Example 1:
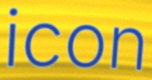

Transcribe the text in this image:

icon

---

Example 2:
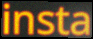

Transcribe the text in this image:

insta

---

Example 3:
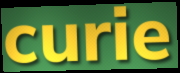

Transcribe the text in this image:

curie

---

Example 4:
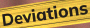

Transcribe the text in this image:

Deviations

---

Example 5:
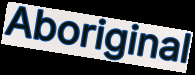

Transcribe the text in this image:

Aboriginal